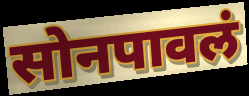
सोनपावलं